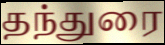
தந்துரை